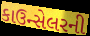
કાઉન્સેલરની